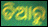
ତିଆରୁ